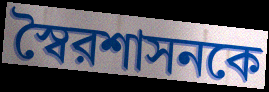
স্বৈরশাসনকে